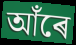
আঁৰে